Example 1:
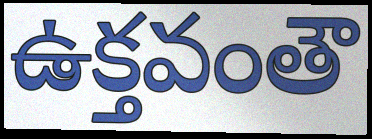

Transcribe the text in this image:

ఉక్తవంతౌ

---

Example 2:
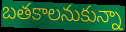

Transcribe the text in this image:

బతకాలనుకున్నా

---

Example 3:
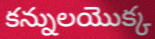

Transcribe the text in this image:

కన్నులయొక్క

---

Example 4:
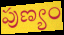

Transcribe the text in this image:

పుణ్యం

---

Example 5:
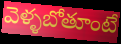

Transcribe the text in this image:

వెళ్ళబోతూంటే